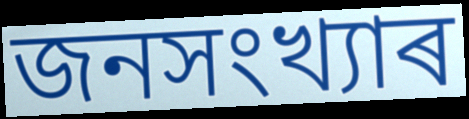
জনসংখ্যাৰ